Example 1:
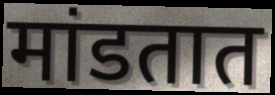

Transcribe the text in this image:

मांडतात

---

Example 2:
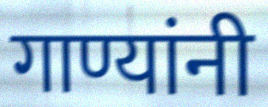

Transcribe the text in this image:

गाण्यांनी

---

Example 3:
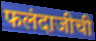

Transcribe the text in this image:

फलंदाजीची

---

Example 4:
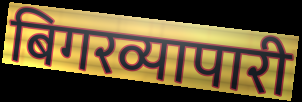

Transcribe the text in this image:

बिगरव्यापारी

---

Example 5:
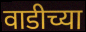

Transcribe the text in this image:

वाडीच्या